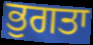
ਭੁਗਤਾ